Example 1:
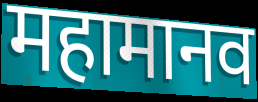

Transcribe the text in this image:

महामानव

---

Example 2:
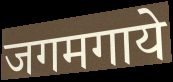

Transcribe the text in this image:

जगमगाये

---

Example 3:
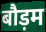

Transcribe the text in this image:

बौड़म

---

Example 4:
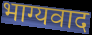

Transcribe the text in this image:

भाग्यवाद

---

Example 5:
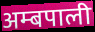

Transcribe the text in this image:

अम्बपाली